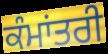
ਕੰਮਾਂਤਰੀ